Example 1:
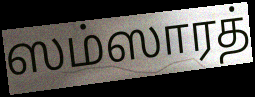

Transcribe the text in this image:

ஸம்ஸாரத்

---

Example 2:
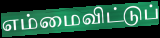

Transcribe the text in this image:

எம்மைவிட்டுப்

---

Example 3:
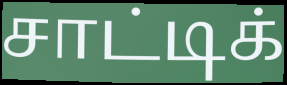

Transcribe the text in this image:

சாட்டிக்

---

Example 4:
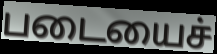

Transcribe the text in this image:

படையைச்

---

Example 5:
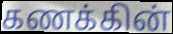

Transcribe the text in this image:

கணக்கின்